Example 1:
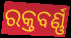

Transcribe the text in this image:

ରକ୍ତବର୍ଣ୍ଣ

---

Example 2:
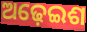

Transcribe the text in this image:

ଅଢ଼େଇଶ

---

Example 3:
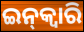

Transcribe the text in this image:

ଇନ୍‌କ୍ଵାରି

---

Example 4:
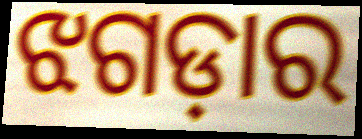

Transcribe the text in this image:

ଝଗଡ଼ାର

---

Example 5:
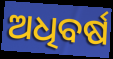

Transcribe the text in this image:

ଅଧିବର୍ଷ